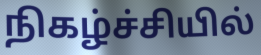
நிகழ்ச்சியில்